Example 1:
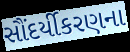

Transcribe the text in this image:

સૌંદર્યીકરણના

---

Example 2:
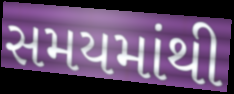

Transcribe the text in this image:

સમયમાંથી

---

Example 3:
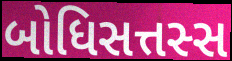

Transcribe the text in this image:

બોધિસત્તસ્સ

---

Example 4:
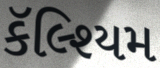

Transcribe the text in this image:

કૅલ્શ્યિમ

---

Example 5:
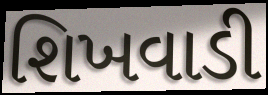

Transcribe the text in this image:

શિખવાડી